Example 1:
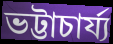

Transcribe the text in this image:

ভট্টাচার্য্য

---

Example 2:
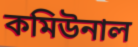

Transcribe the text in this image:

কমিউনাল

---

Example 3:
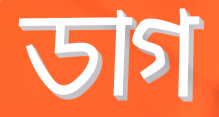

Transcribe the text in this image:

ডাগ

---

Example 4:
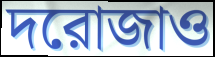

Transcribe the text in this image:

দরোজাও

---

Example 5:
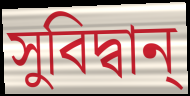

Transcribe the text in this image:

সুবিদ্বান্